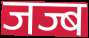
जज्ब